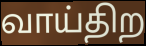
வாய்திற